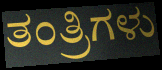
ತಂತ್ರಿಗಳು